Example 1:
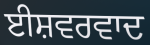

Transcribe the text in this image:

ਈਸ਼ਵਰਵਾਦ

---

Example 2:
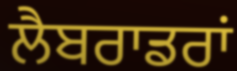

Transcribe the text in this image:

ਲੈਬਰਾਡਰਾਂ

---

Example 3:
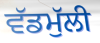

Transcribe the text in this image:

ਵੱਡਮੁੱਲੀ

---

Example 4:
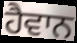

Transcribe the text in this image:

ਹੈਵਾਨ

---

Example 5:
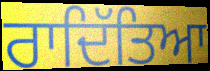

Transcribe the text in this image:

ਰਾਦਿੱਤਿਆ